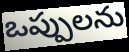
ఒప్పులను